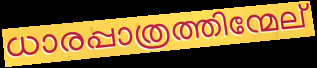
ധാരപ്പാത്രത്തിന്മേല്